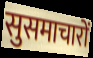
सुसमाचारों